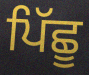
ਪਿੱਛੂ